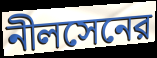
নীলসেনের